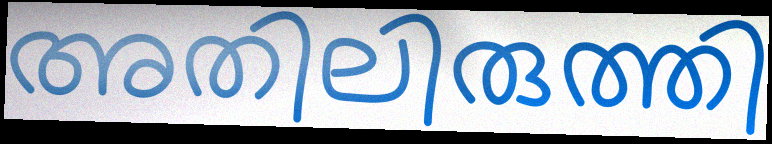
അതിലിരുത്തി